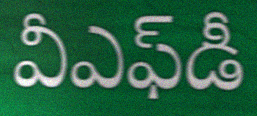
వీఎఫ్‌డీ